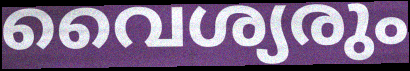
വൈശ്യരും